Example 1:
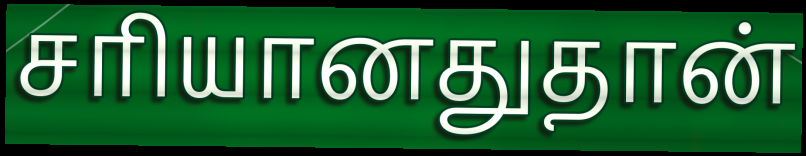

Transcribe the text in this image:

சரியானதுதான்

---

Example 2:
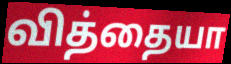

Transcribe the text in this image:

வித்தையா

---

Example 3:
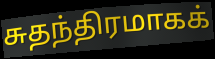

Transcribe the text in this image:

சுதந்திரமாகக்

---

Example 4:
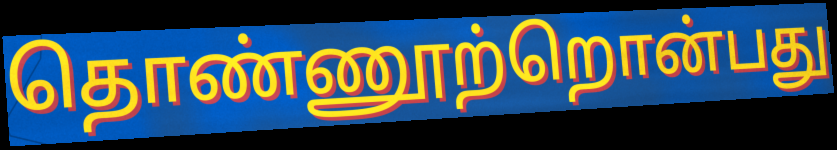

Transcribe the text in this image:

தொண்ணூற்றொன்பது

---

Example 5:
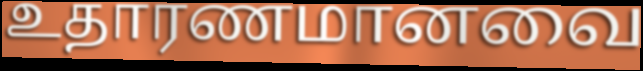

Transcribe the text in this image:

உதாரணமானவை